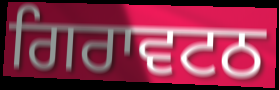
ਗਿਰਾਵਟਠ